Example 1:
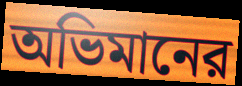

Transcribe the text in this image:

অভিমানের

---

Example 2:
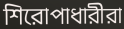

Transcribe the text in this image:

শিরোপাধারীরা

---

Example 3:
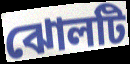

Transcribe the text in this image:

ঝোলটি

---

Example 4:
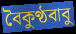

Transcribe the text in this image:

বৈকুণ্ঠবাবু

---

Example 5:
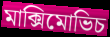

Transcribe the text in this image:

মাক্সিমোভিচ